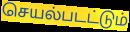
செயல்படட்டும்